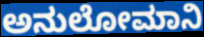
ಅನುಲೋಮಾನಿ